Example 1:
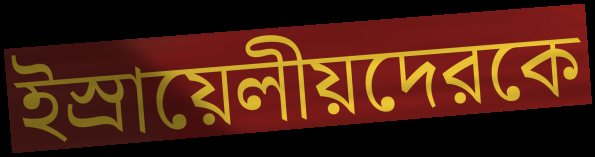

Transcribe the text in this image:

ইস্রায়েলীয়দেরকে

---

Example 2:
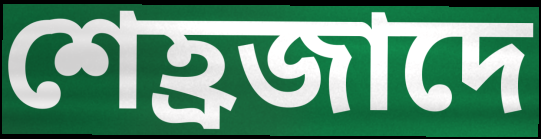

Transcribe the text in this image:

শেহ্রজাদে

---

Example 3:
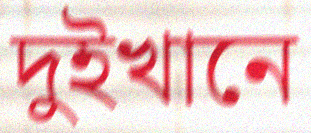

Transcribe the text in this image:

দুইখানে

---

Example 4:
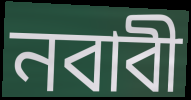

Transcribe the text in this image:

নবাবী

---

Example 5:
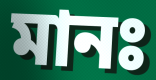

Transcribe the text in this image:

মানঃ